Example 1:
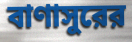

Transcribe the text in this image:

বাণাসুরের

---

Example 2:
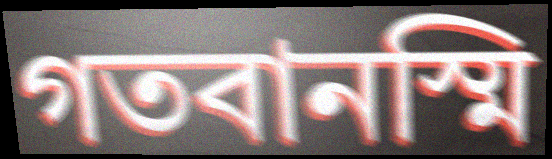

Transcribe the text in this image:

গতবানস্মি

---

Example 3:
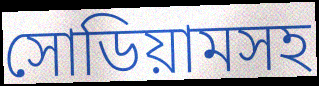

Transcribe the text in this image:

সোডিয়ামসহ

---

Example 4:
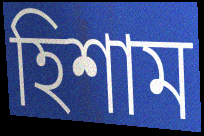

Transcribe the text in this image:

হিশাম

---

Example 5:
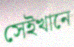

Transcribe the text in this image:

সেইখানে